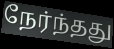
நேர்ந்தது